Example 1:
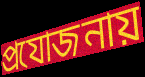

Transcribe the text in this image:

প্রযোজনায়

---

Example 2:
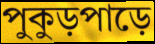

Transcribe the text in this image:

পুকুড়পাড়ে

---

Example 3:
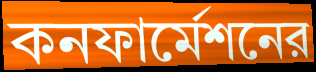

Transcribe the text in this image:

কনফার্মেশনের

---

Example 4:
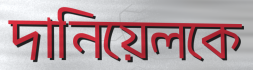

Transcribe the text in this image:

দানিয়েলকে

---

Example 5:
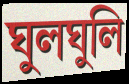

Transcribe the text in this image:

ঘুলঘুলি